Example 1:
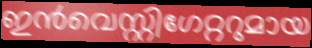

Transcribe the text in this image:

ഇൻവെസ്റ്റിഗേറ്ററുമായ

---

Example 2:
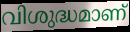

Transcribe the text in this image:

വിശുദ്ധമാണ്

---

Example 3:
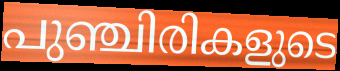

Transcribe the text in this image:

പുഞ്ചിരികളുടെ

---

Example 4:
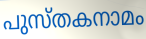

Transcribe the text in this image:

പുസ്തകനാമം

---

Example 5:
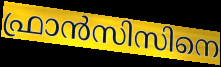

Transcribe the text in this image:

ഫ്രാൻസിസിനെ